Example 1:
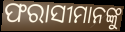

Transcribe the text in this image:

ଫରାସୀମାନଙ୍କୁ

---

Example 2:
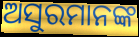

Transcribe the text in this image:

ଅସୁରମାନଙ୍କ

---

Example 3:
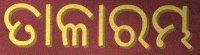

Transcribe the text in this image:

ତାଳାରମ୍ଭ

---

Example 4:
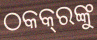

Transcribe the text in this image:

ଠକକ୍‌ରଙ୍କୁ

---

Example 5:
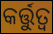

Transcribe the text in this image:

କର୍ତ୍ତୁତ୍ୱ